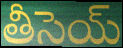
తీసెయ్